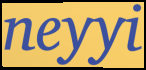
neyyi